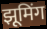
झूमिंग